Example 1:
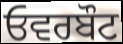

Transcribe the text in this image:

ਓਵਰਬੌਟ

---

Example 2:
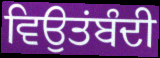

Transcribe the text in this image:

ਵਿਉਤਂਬੰਦੀ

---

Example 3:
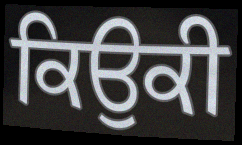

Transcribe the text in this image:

ਕਿਉਕੀ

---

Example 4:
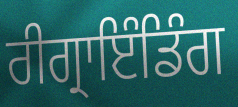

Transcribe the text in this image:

ਰੀਗ੍ਰਾਇੰਡਿੰਗ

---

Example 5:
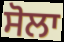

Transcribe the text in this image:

ਸੋਲਾ